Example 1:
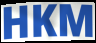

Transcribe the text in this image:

HKM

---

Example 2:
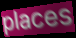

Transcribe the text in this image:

places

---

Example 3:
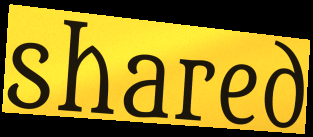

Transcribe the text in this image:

shared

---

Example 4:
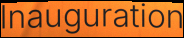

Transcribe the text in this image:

Inauguration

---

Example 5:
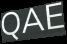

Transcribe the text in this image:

QAE